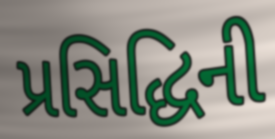
પ્રસિદ્ધિની